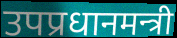
उपप्रधानमन्त्री